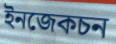
ইনজেকচন